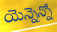
యెన్నెన్నో